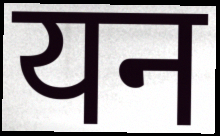
यन